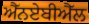
ਐੱਨਏਬੀਐੱਲ